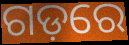
ଗଡ଼ରେ